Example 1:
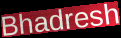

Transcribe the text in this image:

Bhadresh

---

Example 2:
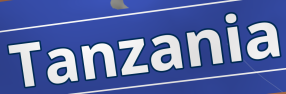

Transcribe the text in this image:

Tanzania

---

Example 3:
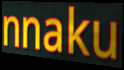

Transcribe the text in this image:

nnaku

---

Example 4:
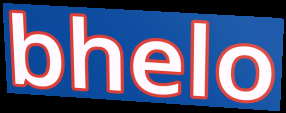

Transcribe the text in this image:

bhelo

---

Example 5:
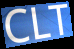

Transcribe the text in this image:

CLT